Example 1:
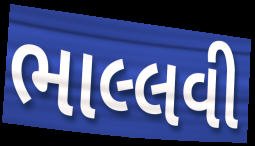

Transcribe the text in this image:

ભાલ્લવી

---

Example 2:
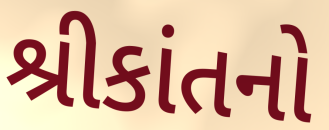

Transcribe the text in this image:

શ્રીકાંતનો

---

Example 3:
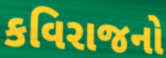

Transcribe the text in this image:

કવિરાજનો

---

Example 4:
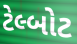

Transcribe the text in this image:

ટેલ્બોટ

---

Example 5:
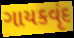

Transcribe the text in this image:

ગાયકવૃંદ